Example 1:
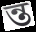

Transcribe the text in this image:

ন্ত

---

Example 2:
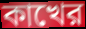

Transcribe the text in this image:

কাখের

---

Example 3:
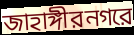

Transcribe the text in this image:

জাহাঙ্গীরনগরে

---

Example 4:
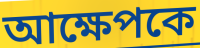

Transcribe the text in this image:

আক্ষেপকে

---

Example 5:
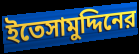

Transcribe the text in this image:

ইতেসামুদ্দিনের